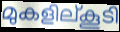
മുകളില്കൂടി